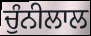
ਚੁੰਨੀਲਾਲ